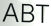
ABT